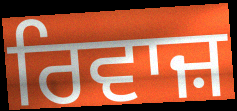
ਰਿਵਾਜ਼